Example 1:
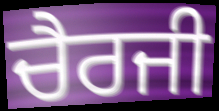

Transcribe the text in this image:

ਚੈਰਜੀ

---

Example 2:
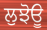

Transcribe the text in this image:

ਲੁਝੋਊ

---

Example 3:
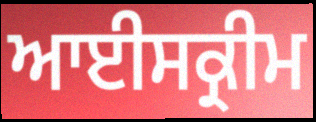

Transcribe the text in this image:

ਆਈਸਕ੍ਰੀਮ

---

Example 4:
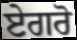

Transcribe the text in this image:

ਏਗਰੋ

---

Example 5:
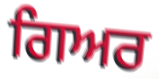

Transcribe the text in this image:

ਗਿਅਰ